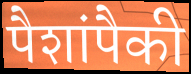
पैशांपैकी